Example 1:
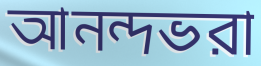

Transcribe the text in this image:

আনন্দভরা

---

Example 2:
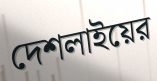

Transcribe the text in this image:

দেশলাইয়ের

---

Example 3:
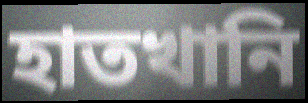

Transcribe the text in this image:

হাতখানি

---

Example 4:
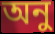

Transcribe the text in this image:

অনু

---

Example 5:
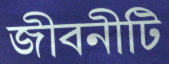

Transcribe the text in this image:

জীবনীটি